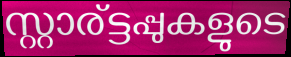
സ്റ്റാര്ട്ടപ്പുകളുടെ